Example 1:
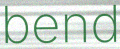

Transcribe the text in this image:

bend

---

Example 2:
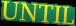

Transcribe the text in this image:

UNTIL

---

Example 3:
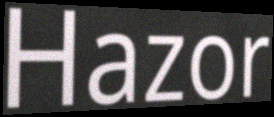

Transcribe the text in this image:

Hazor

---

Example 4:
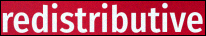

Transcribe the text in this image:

redistributive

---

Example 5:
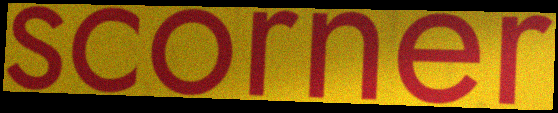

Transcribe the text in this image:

scorner